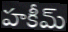
హకీమ్